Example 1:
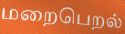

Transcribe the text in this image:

மறைபெறல்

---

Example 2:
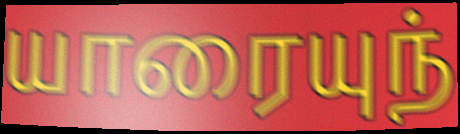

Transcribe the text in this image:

யாரையுந்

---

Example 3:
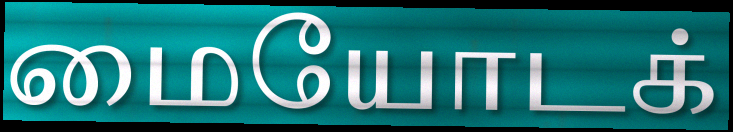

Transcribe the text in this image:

மையோடக்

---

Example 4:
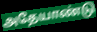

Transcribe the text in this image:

அதேயாண்டு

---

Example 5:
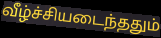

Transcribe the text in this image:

வீழ்ச்சியடைந்ததும்